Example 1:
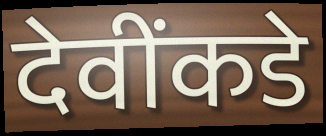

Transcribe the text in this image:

देवींकडे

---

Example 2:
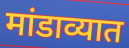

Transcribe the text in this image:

मांडाव्यात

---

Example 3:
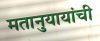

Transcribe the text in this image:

मतानुयायांची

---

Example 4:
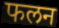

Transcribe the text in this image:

फलन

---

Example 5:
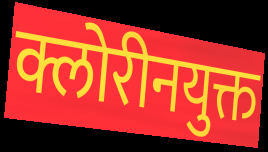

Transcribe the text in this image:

क्लोरीनयुक्त